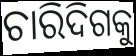
ଚାରିଦିଗକୁ